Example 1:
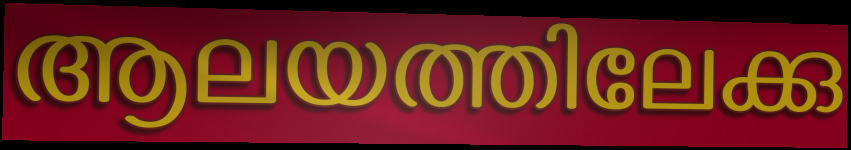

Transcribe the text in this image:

ആലയത്തിലേക്കു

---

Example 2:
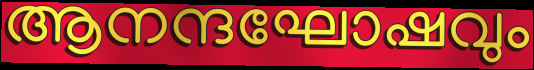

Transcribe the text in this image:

ആനന്ദഘോഷവും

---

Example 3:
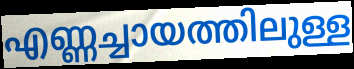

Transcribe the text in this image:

എണ്ണച്ചായത്തിലുള്ള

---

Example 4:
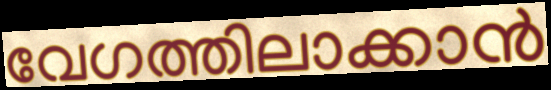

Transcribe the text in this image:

വേഗത്തിലാക്കാൻ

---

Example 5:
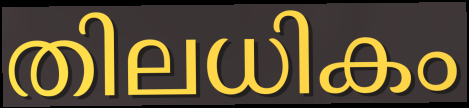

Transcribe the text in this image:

തിലധികം